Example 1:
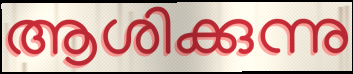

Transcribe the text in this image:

ആശിക്കുന്നു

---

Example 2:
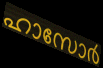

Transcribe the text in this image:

ഹാസോർ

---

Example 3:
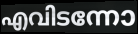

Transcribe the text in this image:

എവിടന്നോ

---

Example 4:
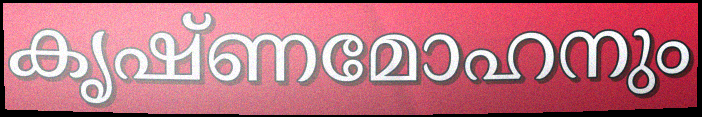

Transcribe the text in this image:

കൃഷ്ണമോഹനും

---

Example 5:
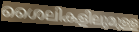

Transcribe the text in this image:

ശൈലികളിലുമുള്ള